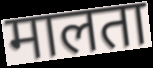
मालता